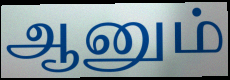
ஆனும்